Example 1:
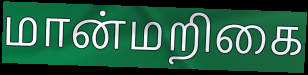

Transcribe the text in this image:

மான்மறிகை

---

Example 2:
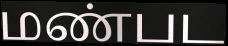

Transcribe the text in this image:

மண்பட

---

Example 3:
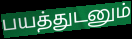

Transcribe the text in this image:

பயத்துடனும்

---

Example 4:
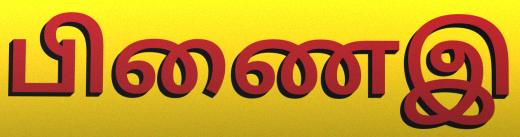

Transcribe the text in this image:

பிணைஇ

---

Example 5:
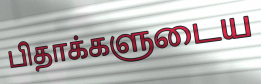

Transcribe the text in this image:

பிதாக்களுடைய